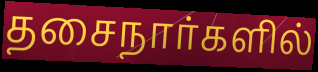
தசைநார்களில்